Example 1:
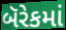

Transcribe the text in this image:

બૅરેકમાં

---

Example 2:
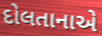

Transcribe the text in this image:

દોલતાનાએ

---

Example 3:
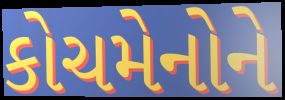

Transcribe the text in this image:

કોચમેનોને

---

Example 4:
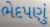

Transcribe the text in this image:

ભેદપણું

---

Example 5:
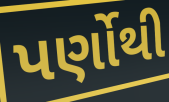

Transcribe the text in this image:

પર્ણોથી